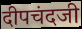
दीपचंदजी